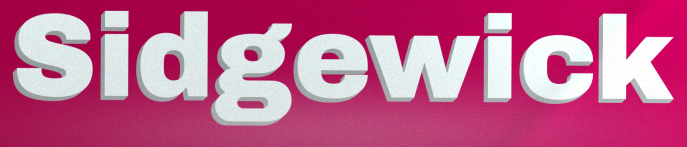
Sidgewick